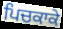
ਪਿਚਕਾਕੇ